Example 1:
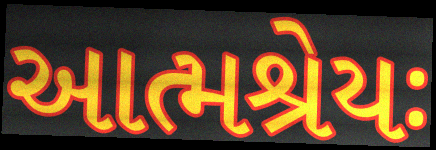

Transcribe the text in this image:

આત્મશ્રેયઃ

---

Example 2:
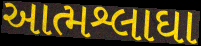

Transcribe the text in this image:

આત્મશ્લાઘા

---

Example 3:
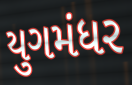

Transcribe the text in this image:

યુગમંધર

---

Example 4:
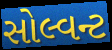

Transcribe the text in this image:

સોલ્વન્ટ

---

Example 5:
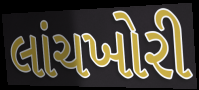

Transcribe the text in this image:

લાંચખોરી